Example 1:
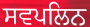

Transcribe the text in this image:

ਸਵਪਲਿਨ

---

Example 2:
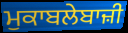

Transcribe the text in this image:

ਮੁਕਾਬਲੇਬਾਜ਼ੀ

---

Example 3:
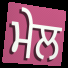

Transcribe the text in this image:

ਮੇਲ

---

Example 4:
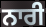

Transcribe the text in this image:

ਨਾਰੀ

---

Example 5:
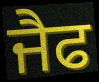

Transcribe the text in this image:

ਜੈਫ